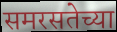
समरसतेच्या